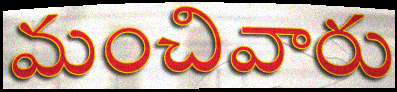
మంచివారు